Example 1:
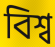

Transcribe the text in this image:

বিশ্ব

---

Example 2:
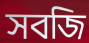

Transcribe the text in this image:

সবজি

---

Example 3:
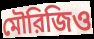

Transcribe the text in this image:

মৌরিজিও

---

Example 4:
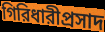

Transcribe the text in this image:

গিরিধারীপ্রসাদ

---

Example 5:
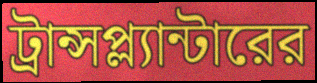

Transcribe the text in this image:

ট্রান্সপ্ল্যান্টারের